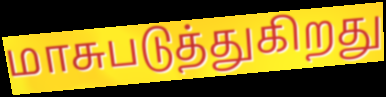
மாசுபடுத்துகிறது